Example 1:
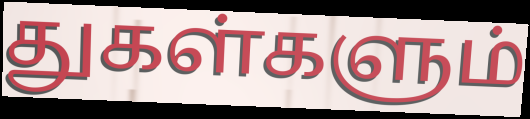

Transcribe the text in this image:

துகள்களும்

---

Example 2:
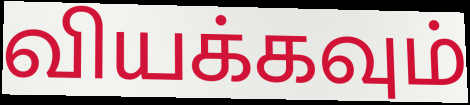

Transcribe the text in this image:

வியக்கவும்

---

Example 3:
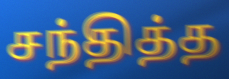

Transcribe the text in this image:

சந்தித்த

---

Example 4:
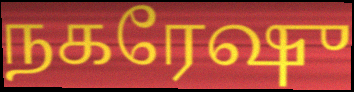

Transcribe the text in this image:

நகரேஷு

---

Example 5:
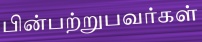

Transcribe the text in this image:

பின்பற்றுபவர்கள்